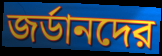
জর্ডানদের